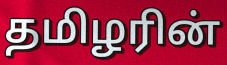
தமிழரின்